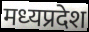
मध्‍यप्रदेश